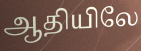
ஆதியிலே